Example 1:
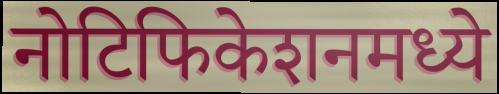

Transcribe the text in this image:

नोटिफिकेशनमध्ये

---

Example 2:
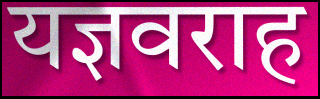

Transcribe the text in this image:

यज्ञवराह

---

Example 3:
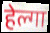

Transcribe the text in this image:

हेल्गा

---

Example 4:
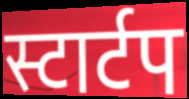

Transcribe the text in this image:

स्टार्टप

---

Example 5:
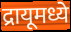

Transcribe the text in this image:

द्रायूमध्ये